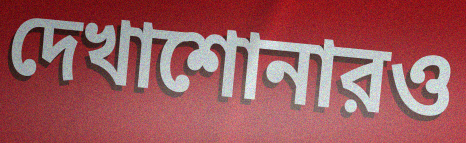
দেখাশোনারও